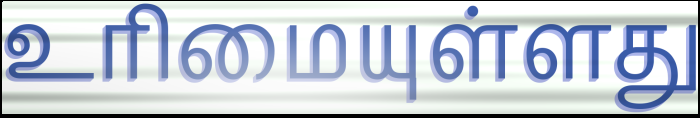
உரிமையுள்ளது